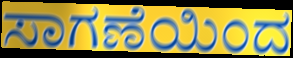
ಸಾಗಣೆಯಿಂದ